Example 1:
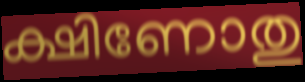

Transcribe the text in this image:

ക്ഷിണോതു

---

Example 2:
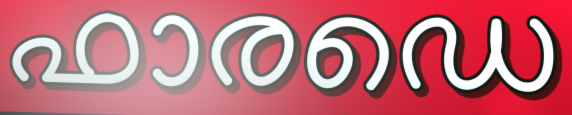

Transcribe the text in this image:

ഫാരഡെ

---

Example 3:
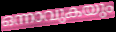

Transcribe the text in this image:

ഒന്നാവുകയും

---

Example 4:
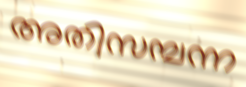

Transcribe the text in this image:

അതിസമ്പന്ന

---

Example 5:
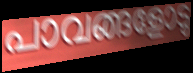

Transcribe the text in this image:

പാവങ്ങളോടു